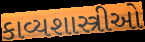
કાવ્યશાસ્ત્રીઓ